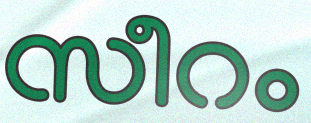
സീറം